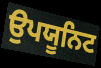
ਉਪਯੂਨਿਟ